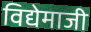
विद्येमाजी